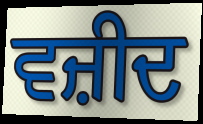
ਵਜ਼ੀਦ